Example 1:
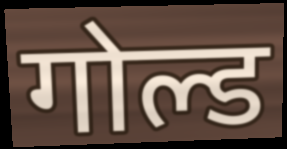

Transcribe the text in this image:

गोल्ड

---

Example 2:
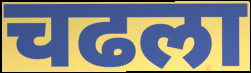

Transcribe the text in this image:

चढला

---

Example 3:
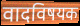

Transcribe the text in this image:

वादविषयक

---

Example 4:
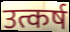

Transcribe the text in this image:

उत्कर्ष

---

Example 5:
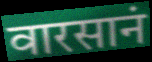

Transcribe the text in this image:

वारसानं